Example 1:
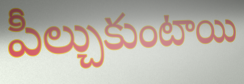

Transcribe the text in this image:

పీల్చుకుంటాయి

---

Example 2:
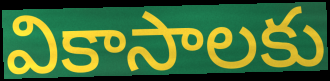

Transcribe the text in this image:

వికాసాలకు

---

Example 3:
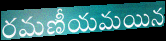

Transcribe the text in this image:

రమణీయమయిన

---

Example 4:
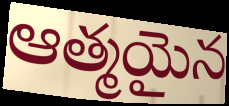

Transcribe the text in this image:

ఆత్మయైన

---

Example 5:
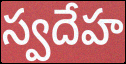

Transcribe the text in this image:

స్వదేహ